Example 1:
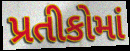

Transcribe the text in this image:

પ્રતીકોમાં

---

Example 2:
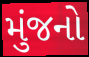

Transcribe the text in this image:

મુંજનો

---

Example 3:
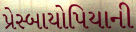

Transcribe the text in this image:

પ્રેસ્બાયોપિયાની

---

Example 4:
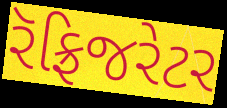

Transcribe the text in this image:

રૅફ્રિજરેટર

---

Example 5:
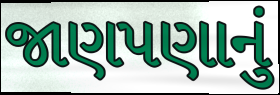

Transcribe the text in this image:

જાણપણાનું